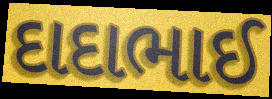
દાદાભાઈ